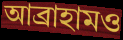
আব্রাহামও